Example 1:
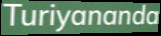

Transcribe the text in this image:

Turiyananda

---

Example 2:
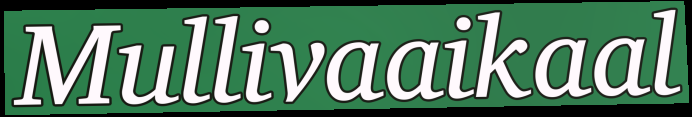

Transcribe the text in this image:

Mullivaaikaal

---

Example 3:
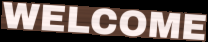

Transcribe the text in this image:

WELCOME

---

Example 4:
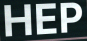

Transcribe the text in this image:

HEP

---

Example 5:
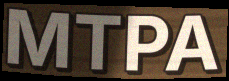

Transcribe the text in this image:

MTPA